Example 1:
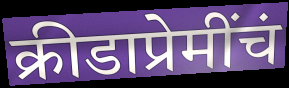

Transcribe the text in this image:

क्रीडाप्रेमींचं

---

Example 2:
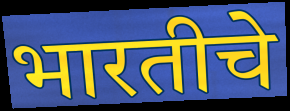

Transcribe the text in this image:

भारतीचे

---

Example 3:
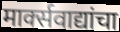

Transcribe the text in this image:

मार्क्‍सवाद्यांचा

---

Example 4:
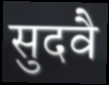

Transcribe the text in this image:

सुदवै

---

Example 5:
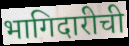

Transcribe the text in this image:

भागिदारीची